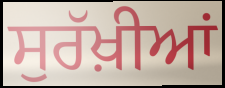
ਸੁਰੱਖ਼ੀਆਂ